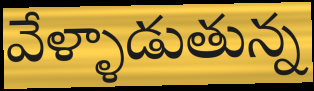
వేళ్ళాడుతున్న